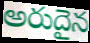
అరుదైన